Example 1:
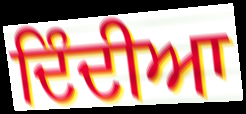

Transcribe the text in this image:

ਦਿੰਦੀਆ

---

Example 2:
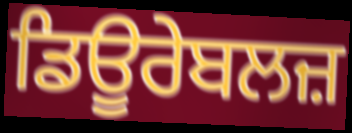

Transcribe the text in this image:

ਡਿਊਰੇਬਲਜ਼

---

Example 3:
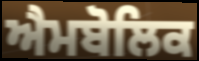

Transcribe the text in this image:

ਐਮਬੋਲਿਕ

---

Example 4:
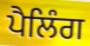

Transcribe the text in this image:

ਪੈਲਿੰਗ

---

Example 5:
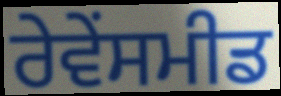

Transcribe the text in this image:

ਰੇਵੇਂਸਮੀਡ